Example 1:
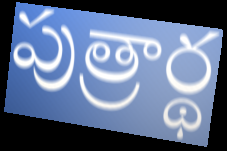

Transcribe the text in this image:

పుత్రార్థ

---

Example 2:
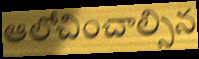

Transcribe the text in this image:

ఆలోచించాల్సిన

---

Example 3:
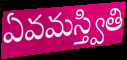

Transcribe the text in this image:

ఏవమస్త్వితి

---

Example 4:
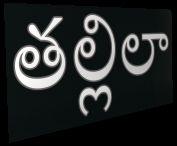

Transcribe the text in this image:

తల్లిలా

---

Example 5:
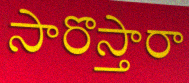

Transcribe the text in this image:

సారొస్తారా